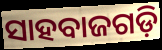
ସାହବାଜଗଡ଼ି